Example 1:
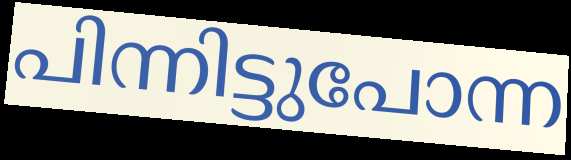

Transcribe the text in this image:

പിന്നിട്ടുപോന്ന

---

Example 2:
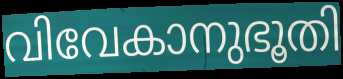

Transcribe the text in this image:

വിവേകാനുഭൂതി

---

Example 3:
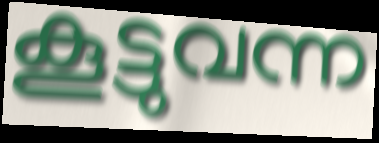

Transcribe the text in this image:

കൂട്ടുവന്ന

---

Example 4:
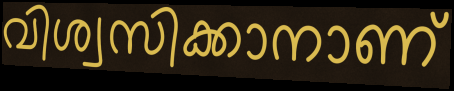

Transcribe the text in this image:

വിശ്വസിക്കാനാണ്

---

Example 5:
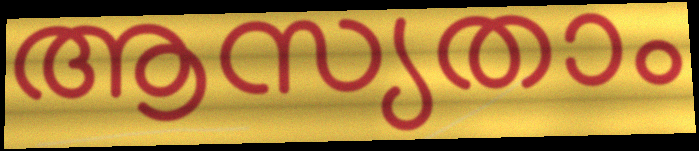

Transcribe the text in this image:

ആസ്യതാം